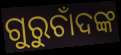
ଗୁରୁଚାଁଦଙ୍କ